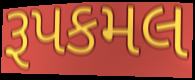
રૂપકમલ